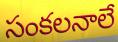
సంకలనాలే